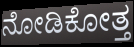
ನೋಡಿಕೋತ್ತ